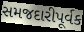
સમજદારીપૂર્વક